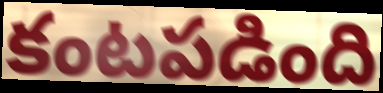
కంటపడింది